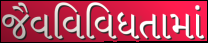
જૈવવિવિધતામાં